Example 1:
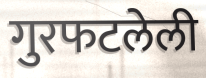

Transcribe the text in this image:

गुरफटलेली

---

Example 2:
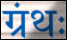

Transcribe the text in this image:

ग्रंथः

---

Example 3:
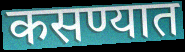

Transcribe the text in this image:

कसण्यात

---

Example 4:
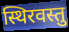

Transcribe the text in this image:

स्थिरवस्तु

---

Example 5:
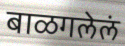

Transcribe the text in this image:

बाळगलेलं